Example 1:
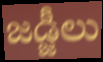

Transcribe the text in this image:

జడ్జీలు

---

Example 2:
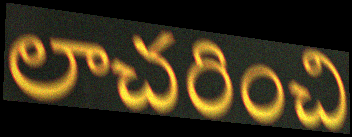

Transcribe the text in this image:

లాచరించి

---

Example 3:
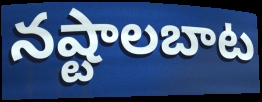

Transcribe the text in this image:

నష్టాలబాట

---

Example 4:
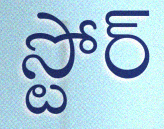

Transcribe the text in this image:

స్టోర్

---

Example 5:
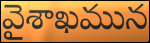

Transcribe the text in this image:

వైశాఖమున